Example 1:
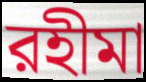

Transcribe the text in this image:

রহীমা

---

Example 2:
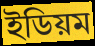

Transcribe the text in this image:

ইডিয়ম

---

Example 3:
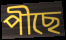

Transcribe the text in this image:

পীছে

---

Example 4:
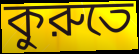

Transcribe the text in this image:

কুরুতে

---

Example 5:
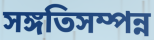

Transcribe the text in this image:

সঙ্গতিসম্পন্ন